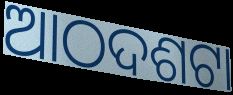
ଆଠଦଶଟା